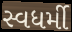
સ્વધર્મી